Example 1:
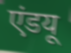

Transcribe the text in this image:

एंडयू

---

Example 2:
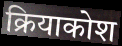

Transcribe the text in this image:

क्रियाकोश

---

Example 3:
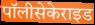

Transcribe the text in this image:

पॉलीसेकेराइड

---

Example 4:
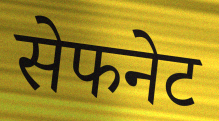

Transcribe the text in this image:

सेफनेट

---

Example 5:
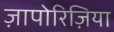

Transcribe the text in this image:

ज़ापोरिज़िया